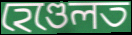
হেণ্ডেলত